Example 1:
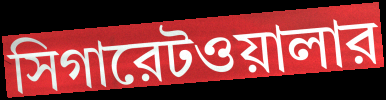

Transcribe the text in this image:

সিগারেটওয়ালার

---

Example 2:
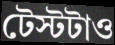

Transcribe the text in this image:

টেস্টটাও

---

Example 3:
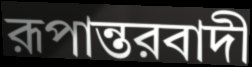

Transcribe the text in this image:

রূপান্তরবাদী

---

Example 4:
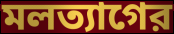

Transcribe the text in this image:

মলত্যাগের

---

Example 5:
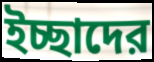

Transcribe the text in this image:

ইচ্ছাদের